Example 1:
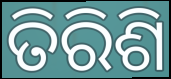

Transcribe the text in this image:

ତିରିଶି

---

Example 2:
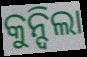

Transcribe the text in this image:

କୁନ୍ଦିଲା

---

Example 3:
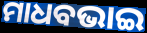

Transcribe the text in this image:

ମାଧବଭାଇ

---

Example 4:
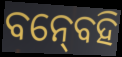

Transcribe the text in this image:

ବନ୍‍ବେହି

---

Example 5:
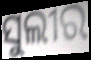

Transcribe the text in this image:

ସୁଲୀର